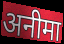
अनीमा